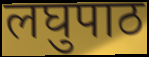
लघुपाठ